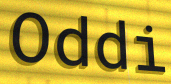
Oddi